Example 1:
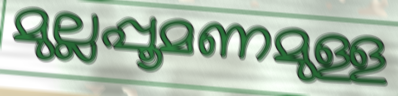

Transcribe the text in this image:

മുല്ലപ്പൂമണമുള്ള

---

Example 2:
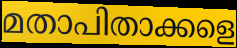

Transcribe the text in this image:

മതാപിതാക്കളെ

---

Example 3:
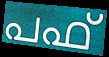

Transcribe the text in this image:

പഫ്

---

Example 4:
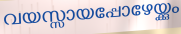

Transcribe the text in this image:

വയസ്സായപ്പോഴേയ്ക്കും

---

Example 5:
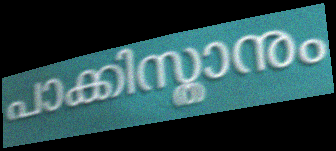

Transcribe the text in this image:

പാക്കിസ്താനും